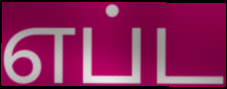
எப்ட